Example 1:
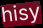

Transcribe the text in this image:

hisy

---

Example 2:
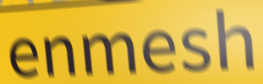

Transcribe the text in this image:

enmesh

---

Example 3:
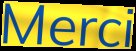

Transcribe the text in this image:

Merci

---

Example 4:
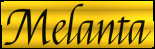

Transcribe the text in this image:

Melanta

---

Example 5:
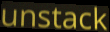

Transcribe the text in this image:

unstack